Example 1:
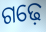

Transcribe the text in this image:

ଗଢ଼େ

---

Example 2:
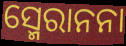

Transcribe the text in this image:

ସ୍ମେରାନନା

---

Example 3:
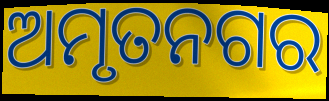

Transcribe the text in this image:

ଅମୃତନଗର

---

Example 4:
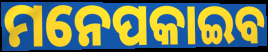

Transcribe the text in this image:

ମନେପକାଇବ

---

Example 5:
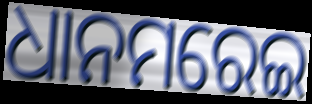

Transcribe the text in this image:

ଧାନମରେଇ